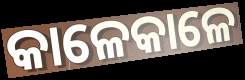
କାଳେକାଳେ